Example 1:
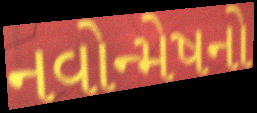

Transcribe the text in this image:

નવોન્મેષનો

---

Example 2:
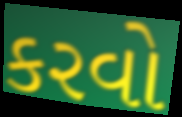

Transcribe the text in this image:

કરવો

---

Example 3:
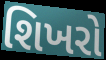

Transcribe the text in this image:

શિખરો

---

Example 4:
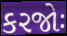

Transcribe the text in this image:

કરજોઃ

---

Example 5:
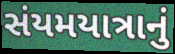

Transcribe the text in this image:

સંયમયાત્રાનું